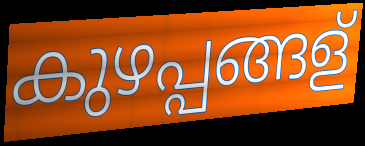
കുഴപ്പങ്ങള്